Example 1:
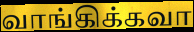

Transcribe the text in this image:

வாங்கிக்கவா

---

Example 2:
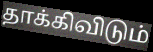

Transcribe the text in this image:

தாக்கிவிடும்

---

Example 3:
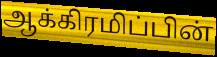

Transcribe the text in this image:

ஆக்கிரமிப்பின்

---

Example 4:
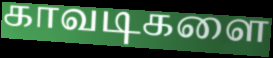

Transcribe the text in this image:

காவடிகளை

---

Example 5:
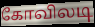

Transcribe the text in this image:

கோவிலடி